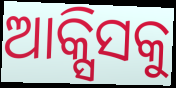
ଆକ୍ସିସକୁ